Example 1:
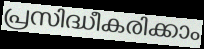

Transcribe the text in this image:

പ്രസിദ്ധീകരിക്കാം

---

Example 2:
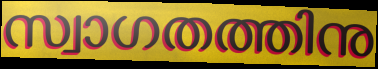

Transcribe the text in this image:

സ്വാഗതത്തിനു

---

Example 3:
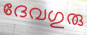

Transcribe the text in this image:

ദേവഗുരു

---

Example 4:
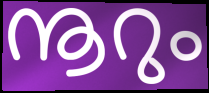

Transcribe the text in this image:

നൂറും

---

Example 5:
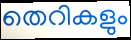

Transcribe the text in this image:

തെറികളും